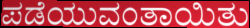
ಪಡೆಯುವಂತಾಯಿತು